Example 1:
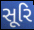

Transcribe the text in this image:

સૂરિ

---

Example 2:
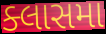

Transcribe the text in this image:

ક્લાસમા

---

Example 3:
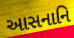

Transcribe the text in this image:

આસનાનિ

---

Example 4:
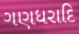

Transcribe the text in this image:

ગણધરાદિ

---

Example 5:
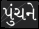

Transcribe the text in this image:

પુંચને